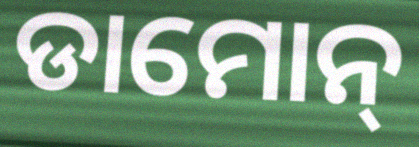
ଡାମୋନ୍